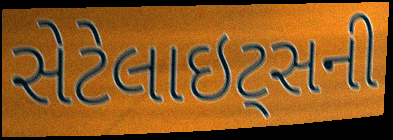
સેટેલાઇટ્સની